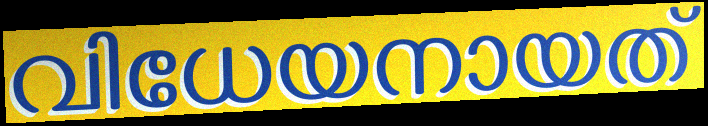
വിധേയനായത്